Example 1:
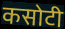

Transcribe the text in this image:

कसोटी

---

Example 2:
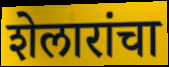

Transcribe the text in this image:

शेलारांचा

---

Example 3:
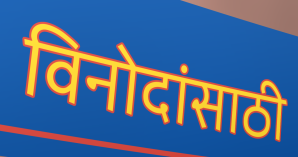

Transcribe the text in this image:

विनोदांसाठी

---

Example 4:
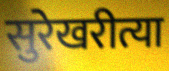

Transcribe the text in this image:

सुरेखरीत्या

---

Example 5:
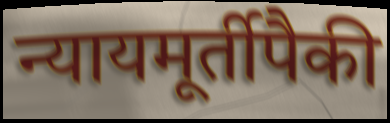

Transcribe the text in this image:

न्यायमूर्तीपैकी